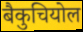
बैकुचियोल